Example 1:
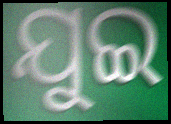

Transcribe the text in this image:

ଯୁଇ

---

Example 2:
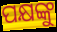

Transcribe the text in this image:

ପକ୍ଷଙ୍କୁ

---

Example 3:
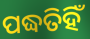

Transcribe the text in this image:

ପଦ୍ଧତିହିଁ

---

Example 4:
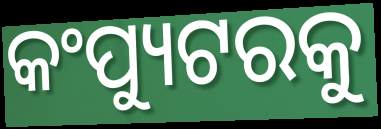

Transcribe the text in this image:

କଂପ୍ୟୁଟରକୁ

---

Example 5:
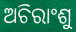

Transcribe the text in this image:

ଅଚିରାଂଶୁ